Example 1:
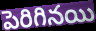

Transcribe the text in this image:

పెరిగినయి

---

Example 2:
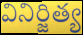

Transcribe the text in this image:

వినిర్జిత్య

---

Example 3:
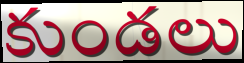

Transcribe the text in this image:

కుండలు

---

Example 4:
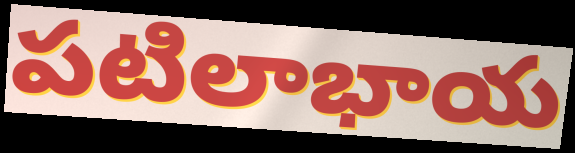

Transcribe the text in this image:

పటిలాభాయ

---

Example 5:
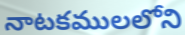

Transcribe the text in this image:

నాటకములలోని